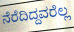
ನೆರೆದಿದ್ದವರೆಲ್ಲ